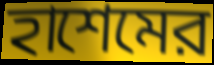
হাশেমের